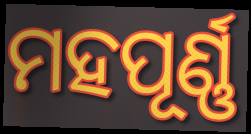
ମହପୂର୍ଣ୍ଣ